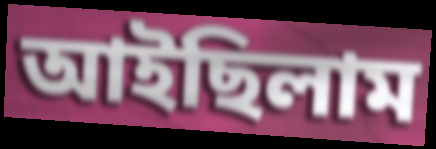
আইছিলাম